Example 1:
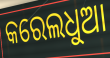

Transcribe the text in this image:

କରେଲଧୁଆ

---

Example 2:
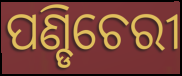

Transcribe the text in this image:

ପଣ୍ଡିଚେରୀ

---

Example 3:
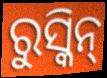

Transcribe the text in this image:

ରୁସ୍କିନ୍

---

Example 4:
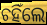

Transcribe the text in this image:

ଚହିଁଲେ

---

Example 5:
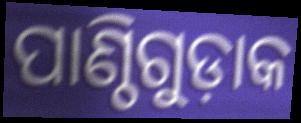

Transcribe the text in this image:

ପାଣ୍ଠିଗୁଡ଼ାକ